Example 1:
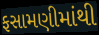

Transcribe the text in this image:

ફસામણીમાંથી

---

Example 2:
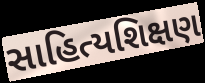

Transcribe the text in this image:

સાહિત્યશિક્ષણ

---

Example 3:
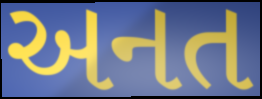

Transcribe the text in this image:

અનત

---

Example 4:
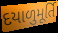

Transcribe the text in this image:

દયાળુમૂર્તિ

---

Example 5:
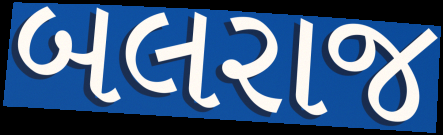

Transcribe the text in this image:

બલરાજ